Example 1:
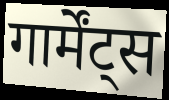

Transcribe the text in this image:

गार्मेंट्स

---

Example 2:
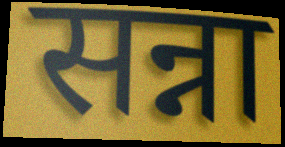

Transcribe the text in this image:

सन्ना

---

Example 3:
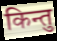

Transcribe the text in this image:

किन्‍तु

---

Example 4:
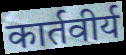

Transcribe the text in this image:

कार्तवीर्य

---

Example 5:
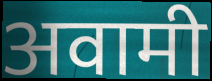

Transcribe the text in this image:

अवामी